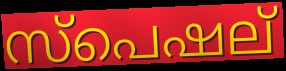
സ്പെഷല്